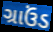
ગ્રાઉંડ